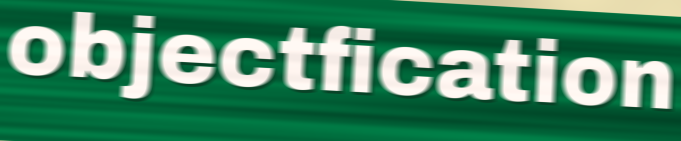
objectfication